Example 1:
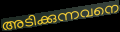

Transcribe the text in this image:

അടിക്കുന്നവനെ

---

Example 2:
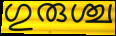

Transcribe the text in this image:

ഗുരുശ്ച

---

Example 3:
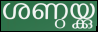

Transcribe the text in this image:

ശണ്ഠയ്ക്കു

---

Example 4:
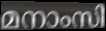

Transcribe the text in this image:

മനാംസി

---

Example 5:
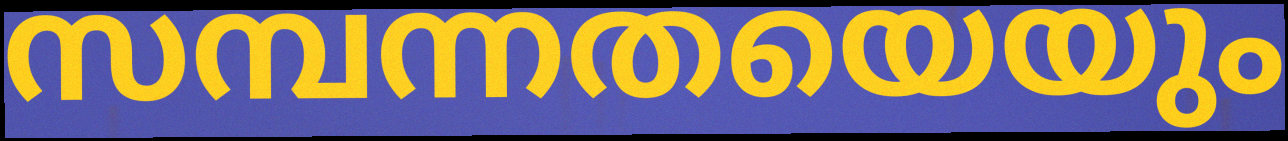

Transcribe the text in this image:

സമ്പന്നതയെയും